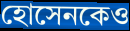
হোসেনকেও